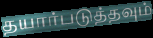
தயார்படுத்தவும்